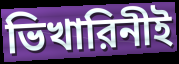
ভিখারিনীই